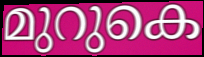
മുറുകെ